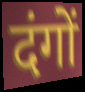
दंगों